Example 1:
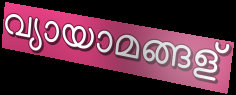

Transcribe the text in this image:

വ്യായാമങ്ങള്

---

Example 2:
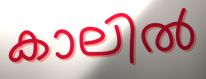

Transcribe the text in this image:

കാലിൽ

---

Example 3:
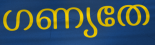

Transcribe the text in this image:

ഗണ്യതേ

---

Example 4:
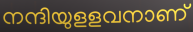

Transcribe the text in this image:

നന്ദിയുളളവനാണ്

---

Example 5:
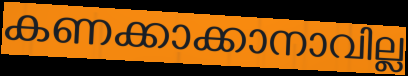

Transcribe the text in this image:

കണക്കാക്കാനാവില്ല